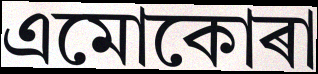
এমোকোৰা